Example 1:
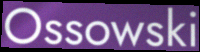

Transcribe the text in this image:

Ossowski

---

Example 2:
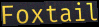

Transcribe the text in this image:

Foxtail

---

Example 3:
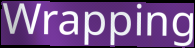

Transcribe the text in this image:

Wrapping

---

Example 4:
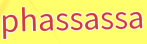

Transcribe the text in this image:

phassassa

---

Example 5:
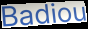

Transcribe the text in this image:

Badiou